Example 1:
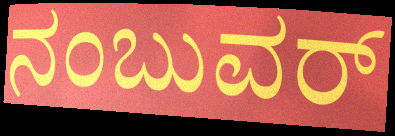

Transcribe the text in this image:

ನಂಬುವರ್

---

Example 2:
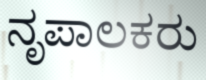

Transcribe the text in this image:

ನೃಪಾಲಕರು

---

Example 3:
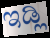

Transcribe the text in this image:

ಇಡ್ಲಿ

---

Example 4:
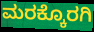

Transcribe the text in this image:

ಮರಕ್ಕೊರಗಿ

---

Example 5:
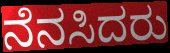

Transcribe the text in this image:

ನೆನಸಿದರು